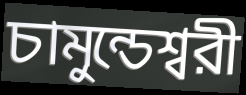
চামুন্ডেশ্বরী